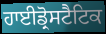
ਹਾਈਡ੍ਰੋਸਟੈਟਿਕ